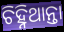
ଚିହ୍ନିଥାନ୍ତା